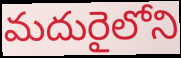
మదురైలోని